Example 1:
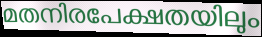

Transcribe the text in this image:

മതനിരപേക്ഷതയിലും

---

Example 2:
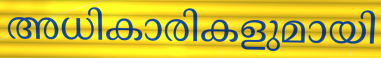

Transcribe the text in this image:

അധികാരികളുമായി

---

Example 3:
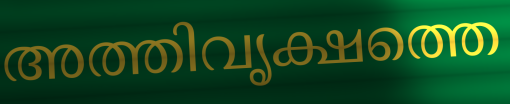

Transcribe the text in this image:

അത്തിവൃക്ഷത്തെ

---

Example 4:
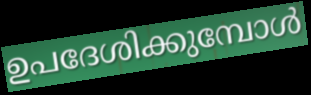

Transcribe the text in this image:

ഉപദേശിക്കുമ്പോൾ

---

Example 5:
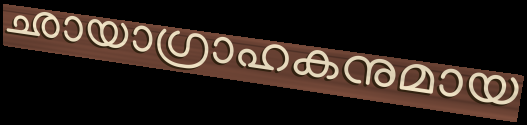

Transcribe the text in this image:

ഛായാഗ്രാഹകനുമായ